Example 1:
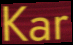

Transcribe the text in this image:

Kar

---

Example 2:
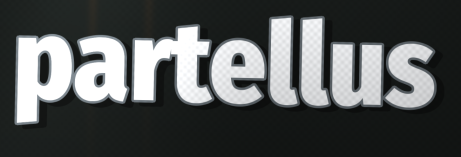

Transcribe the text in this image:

partellus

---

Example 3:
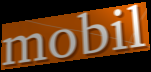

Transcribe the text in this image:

mobil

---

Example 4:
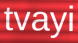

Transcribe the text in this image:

tvayi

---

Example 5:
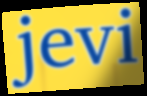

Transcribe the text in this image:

jevi